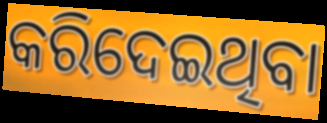
କରିଦେଇଥିବା